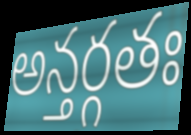
అన్తర్గతః